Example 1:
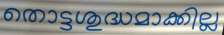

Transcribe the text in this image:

തൊട്ടശുദ്ധമാക്കില്ല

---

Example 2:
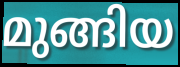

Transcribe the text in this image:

മുങ്ങിയ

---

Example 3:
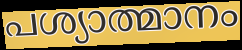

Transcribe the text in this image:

പശ്യാത്മാനം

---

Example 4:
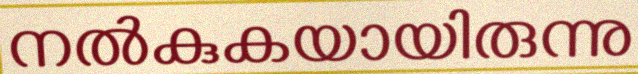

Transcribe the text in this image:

നൽകുകയായിരുന്നു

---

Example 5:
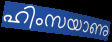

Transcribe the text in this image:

ഹിംസയാണു